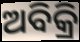
ଅବିକ୍ରି